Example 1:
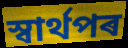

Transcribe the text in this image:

স্বাৰ্থপৰ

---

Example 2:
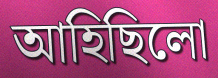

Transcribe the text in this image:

আহিছিলো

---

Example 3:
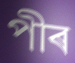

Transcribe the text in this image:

পীৰ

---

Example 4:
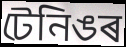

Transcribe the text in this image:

টেনিঙৰ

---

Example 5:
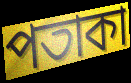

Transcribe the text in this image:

পতাকা